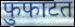
फुफाटत